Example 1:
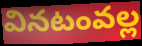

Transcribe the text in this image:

వినటంవల్ల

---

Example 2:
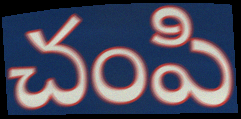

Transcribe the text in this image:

చంపి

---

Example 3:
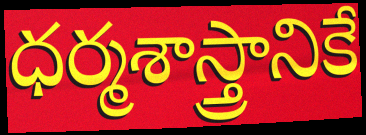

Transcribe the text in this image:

ధర్మశాస్త్రానికే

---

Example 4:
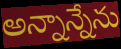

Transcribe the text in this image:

అన్నాన్నేను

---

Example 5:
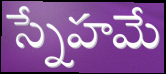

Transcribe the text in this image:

స్నేహమే